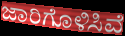
ಜಾರಿಗೊಳಿಸಿವೆ